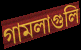
গামলাগুলি